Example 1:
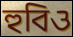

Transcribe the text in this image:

হুবিও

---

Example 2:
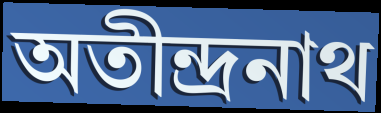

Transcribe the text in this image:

অতীন্দ্রনাথ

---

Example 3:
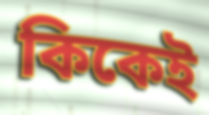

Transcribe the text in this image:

কিকেই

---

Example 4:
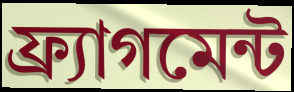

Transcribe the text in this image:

ফ্র্যাগমেন্ট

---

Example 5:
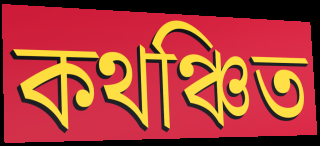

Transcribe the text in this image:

কথঞ্চিত